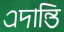
এদান্তি